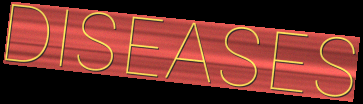
DISEASES